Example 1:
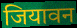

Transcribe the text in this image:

जियावन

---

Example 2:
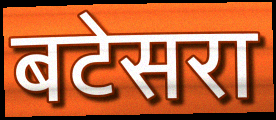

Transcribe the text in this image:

बटेसरा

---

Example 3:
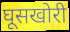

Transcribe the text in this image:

घूसखोरी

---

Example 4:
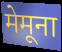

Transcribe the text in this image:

मेमूना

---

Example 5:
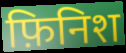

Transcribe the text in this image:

फ़िनिश